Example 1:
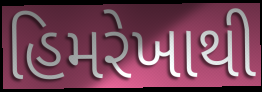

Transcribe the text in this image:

હિમરેખાથી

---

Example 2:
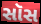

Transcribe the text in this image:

સૉસ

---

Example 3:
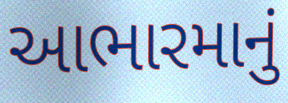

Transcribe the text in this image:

આભારમાનું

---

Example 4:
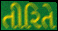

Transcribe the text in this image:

તીરિતે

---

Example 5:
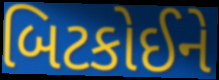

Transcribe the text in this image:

બિટકોઈને